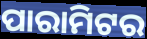
ପାରାମିଟର